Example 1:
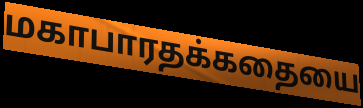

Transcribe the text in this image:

மகாபாரதக்கதையை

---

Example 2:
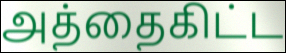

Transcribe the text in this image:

அத்தைகிட்ட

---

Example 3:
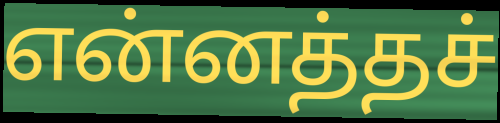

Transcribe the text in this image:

என்னத்தச்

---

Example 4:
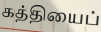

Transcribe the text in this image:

கத்தியைப்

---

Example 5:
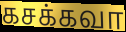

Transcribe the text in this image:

கசக்கவா